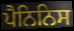
ਪੈਨਿਨਿਸ